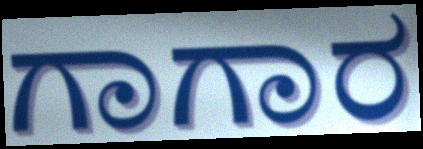
ಗಾಗಾರ